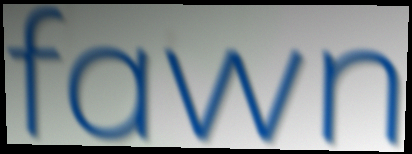
fawn